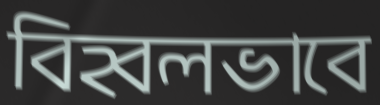
বিহ্বলভাবে